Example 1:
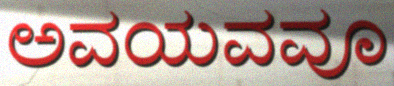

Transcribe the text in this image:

ಅವಯವವೂ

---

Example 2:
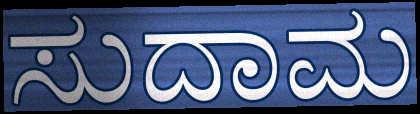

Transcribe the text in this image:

ಸುದಾಮ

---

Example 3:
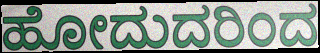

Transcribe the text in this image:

ಹೋದುದರಿಂದ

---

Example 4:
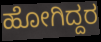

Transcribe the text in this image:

ಹೋಗಿದ್ದರ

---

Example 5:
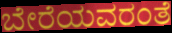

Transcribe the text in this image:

ಬೇರೆಯವರಂತೆ